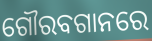
ଗୌରବଗାନରେ